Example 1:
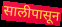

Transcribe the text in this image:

सालीपासून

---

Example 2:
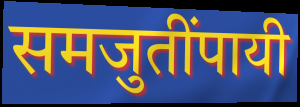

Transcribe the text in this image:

समजुतींपायी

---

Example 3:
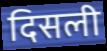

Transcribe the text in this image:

दिसली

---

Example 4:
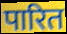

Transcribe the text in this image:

पारित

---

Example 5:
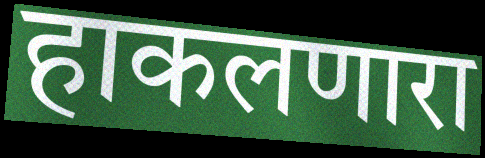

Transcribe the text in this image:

हाकलणारा